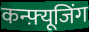
कन्फ़्यूजिंग